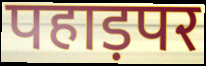
पहाड़पर